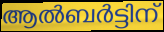
ആൽബർട്ടിന്